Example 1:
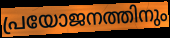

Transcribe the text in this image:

പ്രയോജനത്തിനും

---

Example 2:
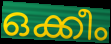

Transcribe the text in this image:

ഒക്കീം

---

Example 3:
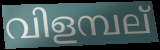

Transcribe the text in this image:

വിളമ്പല്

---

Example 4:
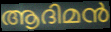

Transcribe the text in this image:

ആദിമൻ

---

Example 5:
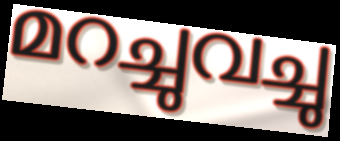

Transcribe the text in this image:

മറച്ചുവച്ചു